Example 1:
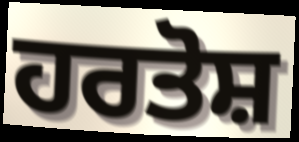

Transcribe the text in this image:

ਹਰਤੋਸ਼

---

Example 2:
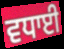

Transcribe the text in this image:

ਵਧਾਈ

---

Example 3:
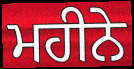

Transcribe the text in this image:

ਮਹੀਨੇ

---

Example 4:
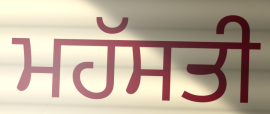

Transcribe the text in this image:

ਮਹੱਸਤੀ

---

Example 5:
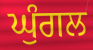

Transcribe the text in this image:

ਘੁੰਗਲ